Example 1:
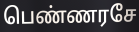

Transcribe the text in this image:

பெண்ணரசே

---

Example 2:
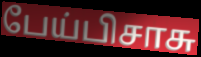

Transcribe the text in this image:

பேய்பிசாசு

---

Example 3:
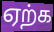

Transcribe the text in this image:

ஏற்க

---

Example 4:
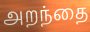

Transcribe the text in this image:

அறந்தை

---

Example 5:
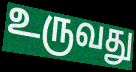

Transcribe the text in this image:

உருவது